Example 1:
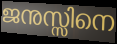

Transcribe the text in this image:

ജനുസ്സിനെ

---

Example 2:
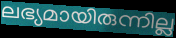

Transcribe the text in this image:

ലഭ്യമായിരുന്നില്ല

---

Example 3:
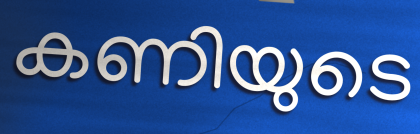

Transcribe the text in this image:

കണിയുടെ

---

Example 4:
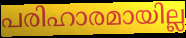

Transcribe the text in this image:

പരിഹാരമായില്ല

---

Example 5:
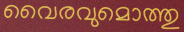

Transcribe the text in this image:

വൈരവുമൊത്തു